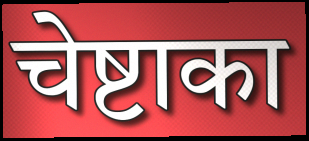
चेष्टाका